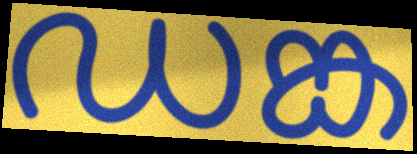
ഡങ്ക